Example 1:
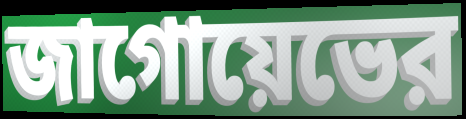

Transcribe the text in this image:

জাগোয়েভের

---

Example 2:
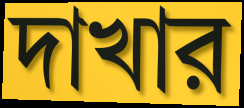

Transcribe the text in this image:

দাখার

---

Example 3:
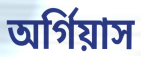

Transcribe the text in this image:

অর্গিয়াস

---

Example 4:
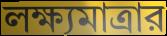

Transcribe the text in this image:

লক্ষ্যমাত্রার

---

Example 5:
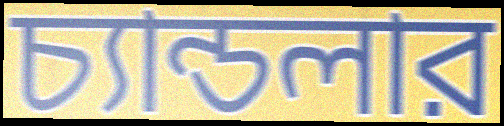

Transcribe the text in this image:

চ্যান্ডলার